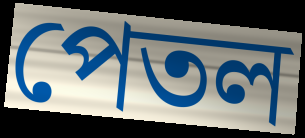
পেতল